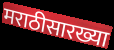
मराठीसारख्या